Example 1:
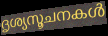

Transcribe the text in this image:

ദൃശ്യസൂചനകൾ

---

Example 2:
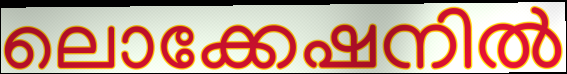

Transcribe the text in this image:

ലൊക്കേഷനിൽ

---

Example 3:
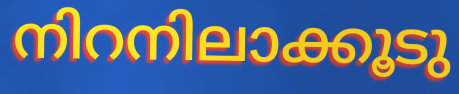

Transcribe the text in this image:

നിറനിലാക്കൂടു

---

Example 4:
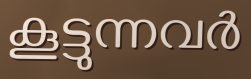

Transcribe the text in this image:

കൂട്ടുന്നവർ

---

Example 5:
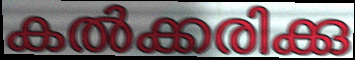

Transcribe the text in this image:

കൽക്കരിക്കു